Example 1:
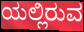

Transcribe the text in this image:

ಯಲ್ಲಿರುವ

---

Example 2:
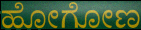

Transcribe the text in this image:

ಹೋಗೋಣ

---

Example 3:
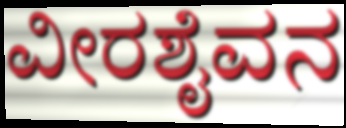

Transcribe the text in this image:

ವೀರಶೈವನ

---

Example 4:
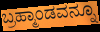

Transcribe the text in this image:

ಬ್ರಹ್ಮಾಂಡವನ್ನೂ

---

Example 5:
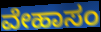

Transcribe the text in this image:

ವೇಹಾಸಂ